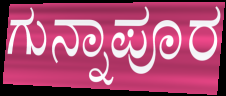
ಗುನ್ನಾಪೂರ